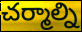
చర్మాల్ని